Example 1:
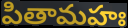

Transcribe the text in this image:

పితామహః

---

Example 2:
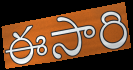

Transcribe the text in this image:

ఈసారి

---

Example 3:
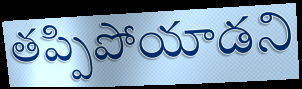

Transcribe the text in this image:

తప్పిపోయాడని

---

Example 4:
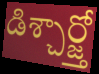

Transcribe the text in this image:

డిశ్చార్జ్తో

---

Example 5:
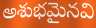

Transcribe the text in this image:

అశుభమైనవి